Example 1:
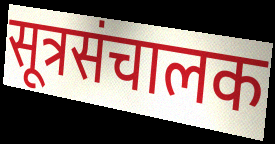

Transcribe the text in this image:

सूत्रसंचालक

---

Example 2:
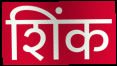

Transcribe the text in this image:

शिंक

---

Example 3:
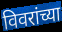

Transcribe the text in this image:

विवरांच्या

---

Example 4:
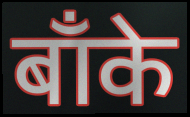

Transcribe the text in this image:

बाँके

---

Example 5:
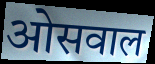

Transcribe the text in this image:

ओसवाल